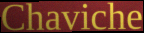
Chaviche